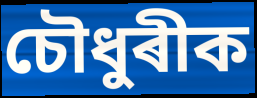
চৌধুৰীক